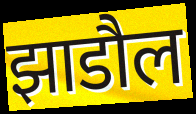
झाडौल